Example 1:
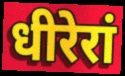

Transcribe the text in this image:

धीरेरां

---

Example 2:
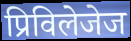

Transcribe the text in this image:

प्रिविलेजेज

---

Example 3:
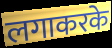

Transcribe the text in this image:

लगाकरके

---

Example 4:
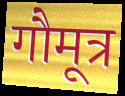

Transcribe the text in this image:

गौमूत्र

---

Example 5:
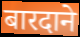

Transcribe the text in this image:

बारदाने